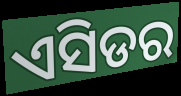
ଏସିଡର